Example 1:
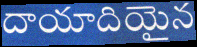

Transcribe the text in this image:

దాయాదియైన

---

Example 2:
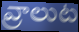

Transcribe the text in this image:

వ్రాలుట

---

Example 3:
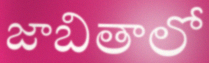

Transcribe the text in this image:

జాబితాలో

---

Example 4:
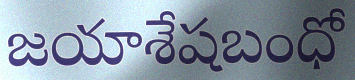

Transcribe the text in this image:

జయాశేషబంధో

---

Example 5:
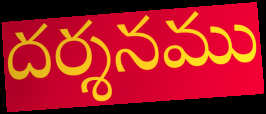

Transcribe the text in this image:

దర్శనము